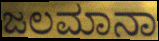
ಜಲಮಾನಾ